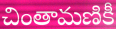
చింతామణికీ